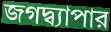
জগদ্ব্যাপার